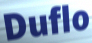
Duflo